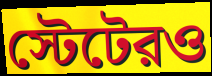
স্টেটেরও